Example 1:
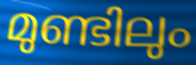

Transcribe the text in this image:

മുണ്ടിലും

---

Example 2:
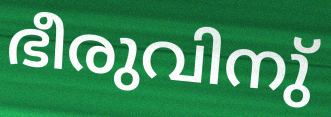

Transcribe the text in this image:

ഭീരുവിനു്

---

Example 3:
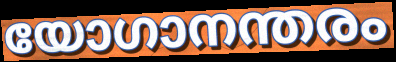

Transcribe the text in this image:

യോഗാനന്തരം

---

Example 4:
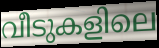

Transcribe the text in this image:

വീടുകളിലെ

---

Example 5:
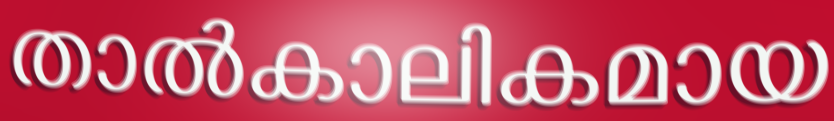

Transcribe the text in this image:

താൽകാലികമായ